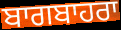
ਬਾਗਬਾਹਰਾ